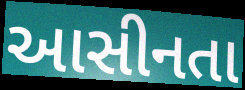
આસીનતા